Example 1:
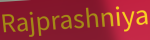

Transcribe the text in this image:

Rajprashniya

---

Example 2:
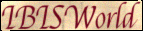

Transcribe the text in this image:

IBISWorld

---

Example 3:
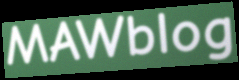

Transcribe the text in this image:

MAWblog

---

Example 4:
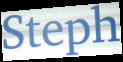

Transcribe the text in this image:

Steph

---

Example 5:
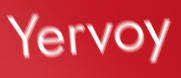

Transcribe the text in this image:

Yervoy